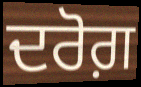
ਦਰੋਗ਼